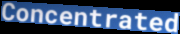
Concentrated